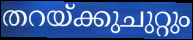
തറയ്ക്കുചുറ്റും